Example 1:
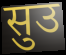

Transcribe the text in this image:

सुउ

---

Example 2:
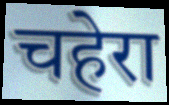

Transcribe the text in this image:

चहेरा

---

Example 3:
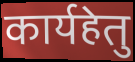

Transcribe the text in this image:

कार्यहेतु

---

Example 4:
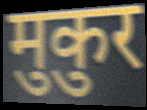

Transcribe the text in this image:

मुकुर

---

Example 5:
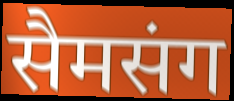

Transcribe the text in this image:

सैमसंग